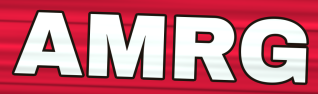
AMRG